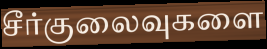
சீர்குலைவுகளை